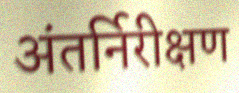
अंतर्निरीक्षण